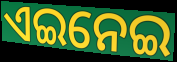
ଏଇନେଇ